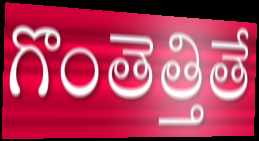
గొంతెత్తితే